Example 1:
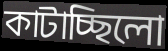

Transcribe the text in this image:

কাটাচ্ছিলো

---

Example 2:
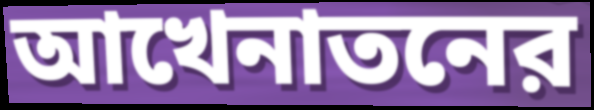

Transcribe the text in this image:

আখেনাতনের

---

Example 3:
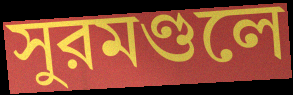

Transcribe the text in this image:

সুরমণ্ডলে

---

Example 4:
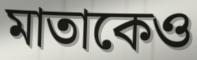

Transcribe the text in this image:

মাতাকেও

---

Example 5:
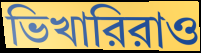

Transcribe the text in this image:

ভিখারিরাও